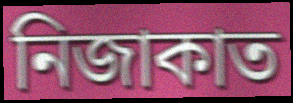
নিজাকাত